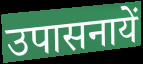
उपासनायें